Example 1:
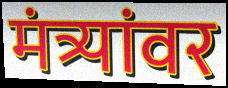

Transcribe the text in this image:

मंत्र्यांवर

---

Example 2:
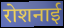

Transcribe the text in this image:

रोशनाई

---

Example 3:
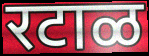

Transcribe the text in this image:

रटाळ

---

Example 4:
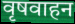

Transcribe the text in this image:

वृषवाहन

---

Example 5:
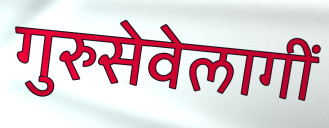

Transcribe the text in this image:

गुरुसेवेलागीं